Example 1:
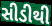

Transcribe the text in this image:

સીડીથી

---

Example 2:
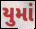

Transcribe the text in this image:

યુમાં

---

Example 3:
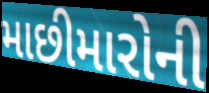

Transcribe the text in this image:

માછીમારોની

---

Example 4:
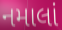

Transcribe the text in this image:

નમાલાં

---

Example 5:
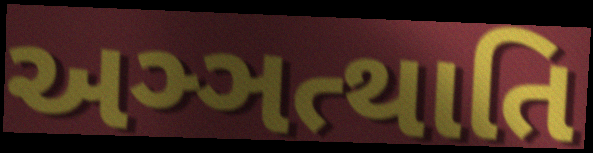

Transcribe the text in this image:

અઞ્ઞત્થાતિ